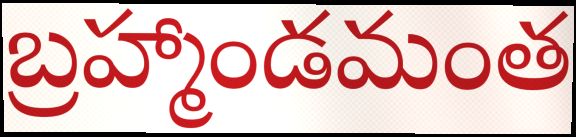
బ్రహ్మాండమంత